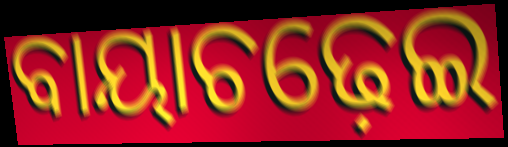
ବାୟାଚଢ଼େଇ